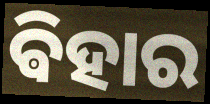
ଵିହାର